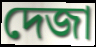
দেজা